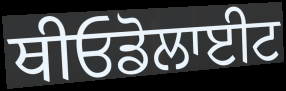
ਥੀਓਡੋਲਾਈਟ